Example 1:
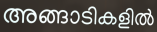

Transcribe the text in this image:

അങ്ങാടികളിൽ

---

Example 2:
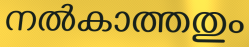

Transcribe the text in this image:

നൽകാത്തതും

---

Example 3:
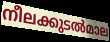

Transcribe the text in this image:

നീലക്കുടൽമാല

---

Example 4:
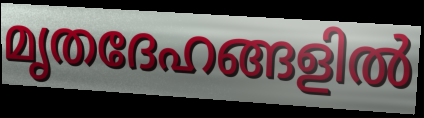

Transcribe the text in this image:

മൃതദേഹങ്ങളിൽ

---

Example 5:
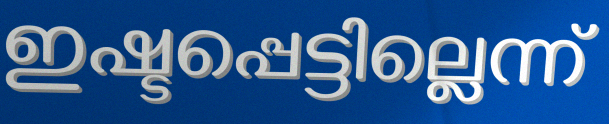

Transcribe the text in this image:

ഇഷ്ടപ്പെട്ടില്ലെന്ന്